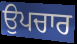
ਉਪਚਾਰ